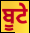
ਬੂਟੇ